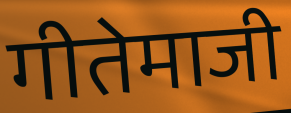
गीतेमाजी